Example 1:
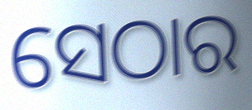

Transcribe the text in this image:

ସେଠାର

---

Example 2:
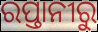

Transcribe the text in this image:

ରପ୍ତାନୀରୁ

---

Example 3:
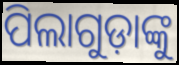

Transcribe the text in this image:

ପିଲାଗୁଡ଼ାଙ୍କୁ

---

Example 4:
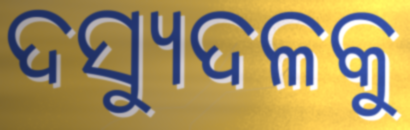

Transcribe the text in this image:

ଦସ୍ୟୁଦଳକୁ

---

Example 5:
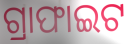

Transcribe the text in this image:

ଗ୍ରାଫାଇଟ